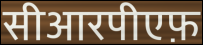
सीआरपीएफ़